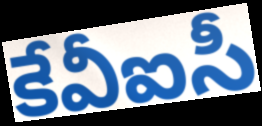
కేవీఐసీ